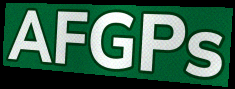
AFGPs